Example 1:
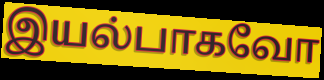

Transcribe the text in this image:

இயல்பாகவோ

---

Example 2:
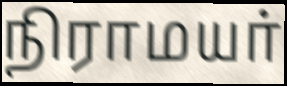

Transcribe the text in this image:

நிராமயர்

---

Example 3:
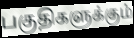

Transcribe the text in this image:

பகுதிகளுக்கும்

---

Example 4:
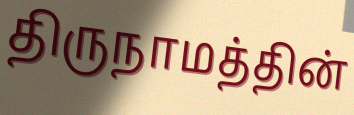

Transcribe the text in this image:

திருநாமத்தின்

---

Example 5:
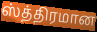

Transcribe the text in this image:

ஸ்த்திரமான